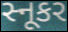
સ્નૂકર